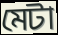
মেটা